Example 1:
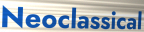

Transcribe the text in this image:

Neoclassical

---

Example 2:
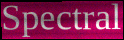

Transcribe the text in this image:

Spectral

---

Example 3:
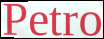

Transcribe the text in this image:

Petro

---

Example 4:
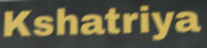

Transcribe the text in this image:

Kshatriya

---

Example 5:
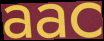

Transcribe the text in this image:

aac